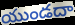
యుండదా